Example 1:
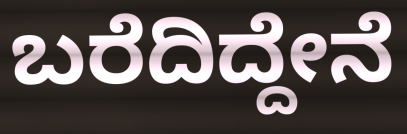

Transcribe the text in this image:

ಬರೆದಿದ್ದೇನೆ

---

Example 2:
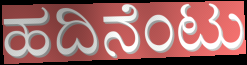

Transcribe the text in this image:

ಹದಿನೆಂಟು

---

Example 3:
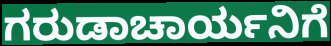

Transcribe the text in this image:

ಗರುಡಾಚಾರ್ಯನಿಗೆ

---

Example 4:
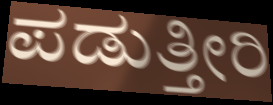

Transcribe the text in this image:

ಪಡುತ್ತೀರಿ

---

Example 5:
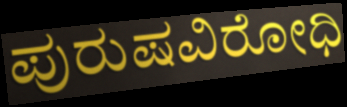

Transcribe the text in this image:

ಪುರುಷವಿರೋಧಿ